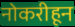
नोकरीहून